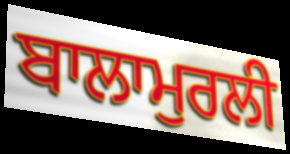
ਬਾਲਾਮੁਰਲੀ